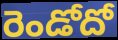
రెండోదో